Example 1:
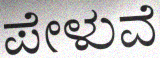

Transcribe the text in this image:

ಪೇಳುವೆ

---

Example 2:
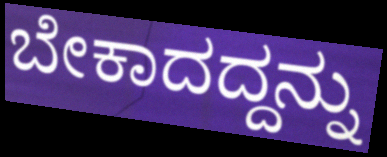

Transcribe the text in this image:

ಬೇಕಾದದ್ದನ್ನು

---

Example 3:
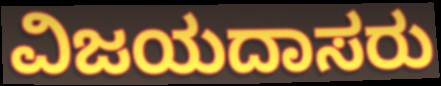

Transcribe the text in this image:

ವಿಜಯದಾಸರು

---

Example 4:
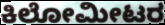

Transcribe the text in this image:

ಕಿಲೋಮೀಟರ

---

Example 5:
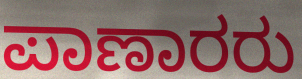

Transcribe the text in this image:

ಪಾಣಾರರು